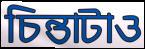
চিন্তাটাও